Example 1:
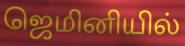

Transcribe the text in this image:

ஜெமினியில்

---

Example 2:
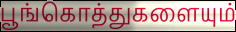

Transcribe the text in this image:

பூங்கொத்துகளையும்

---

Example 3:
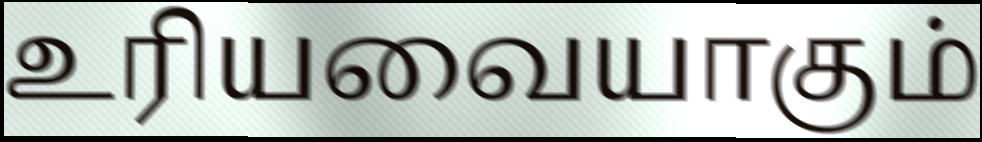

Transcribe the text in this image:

உரியவையாகும்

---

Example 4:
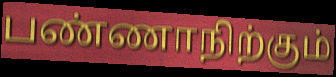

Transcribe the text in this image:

பண்ணாநிற்கும்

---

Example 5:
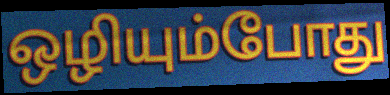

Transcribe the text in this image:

ஒழியும்போது